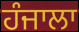
ਹੰਜਾਲਾ